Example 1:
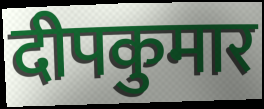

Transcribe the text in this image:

दीपकुमार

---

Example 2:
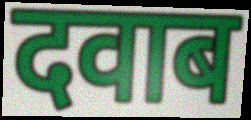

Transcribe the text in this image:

दवाब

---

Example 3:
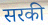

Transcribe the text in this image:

सरकी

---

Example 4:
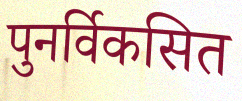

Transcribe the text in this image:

पुनर्विकसित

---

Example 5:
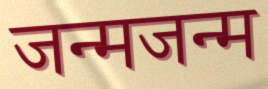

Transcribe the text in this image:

जन्मजन्म